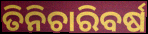
ତିନିଚାରିବର୍ଷ